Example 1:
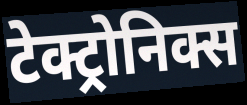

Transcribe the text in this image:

टेक्ट्रोनिक्स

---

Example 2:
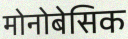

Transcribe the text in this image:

मोनोबेसिक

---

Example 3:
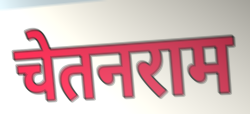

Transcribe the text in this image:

चेतनराम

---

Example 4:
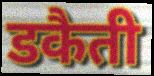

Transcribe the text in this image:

डकैती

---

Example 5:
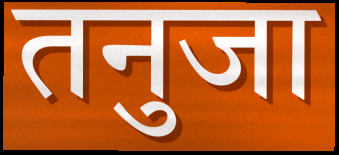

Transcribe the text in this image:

तनुजा